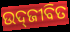
ଉଦ୍‍ଜୀବିତ